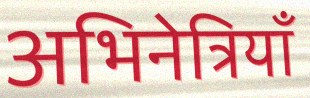
अभिनेत्रियाँ